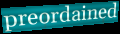
preordained